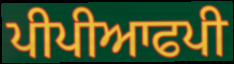
ਪੀਪੀਆਫਪੀ